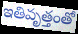
ఇతివృత్తంతో